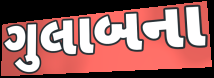
ગુલાબના